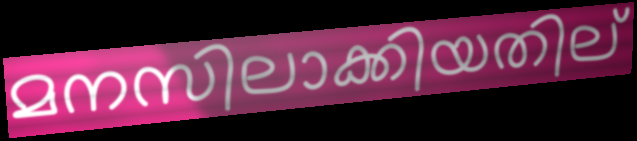
മനസിലാക്കിയതില്